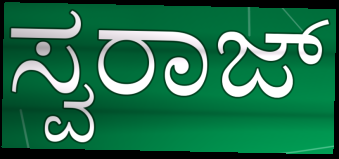
ಸ್ವರಾಜ್